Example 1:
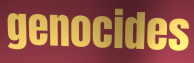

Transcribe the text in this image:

genocides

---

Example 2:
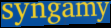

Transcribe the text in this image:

syngamy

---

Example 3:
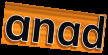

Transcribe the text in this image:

anad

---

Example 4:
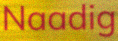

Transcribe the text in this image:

Naadig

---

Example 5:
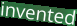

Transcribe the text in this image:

invented